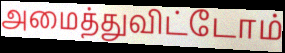
அமைத்துவிட்டோம்